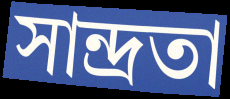
সান্দ্ৰতা